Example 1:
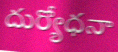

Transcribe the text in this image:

దుర్యోధనా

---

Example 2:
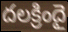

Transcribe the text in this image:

దలక్రిందై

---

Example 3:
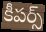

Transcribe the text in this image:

కీపర్స్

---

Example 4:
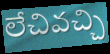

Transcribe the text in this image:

లేచివచ్చి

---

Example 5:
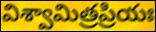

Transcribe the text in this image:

విశ్వామిత్రప్రియః